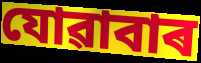
যোৱাবাৰ